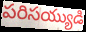
పరిసయ్యుడి